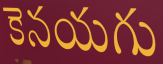
కెనయగు